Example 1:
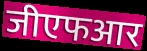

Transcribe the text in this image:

जीएफआर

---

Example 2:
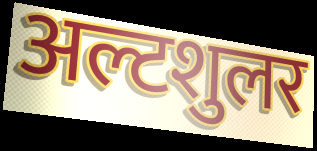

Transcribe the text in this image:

अल्टशुलर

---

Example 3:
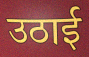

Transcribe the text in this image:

उठाई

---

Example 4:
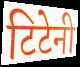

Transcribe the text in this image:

टिटेनी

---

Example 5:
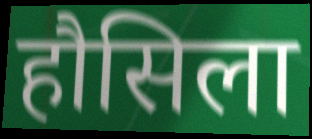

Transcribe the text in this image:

हौसिला